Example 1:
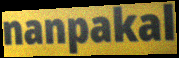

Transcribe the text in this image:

nanpakal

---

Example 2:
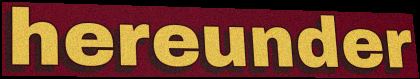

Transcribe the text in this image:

hereunder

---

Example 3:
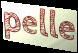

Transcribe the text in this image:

pelle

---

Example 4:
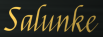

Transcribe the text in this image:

Salunke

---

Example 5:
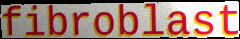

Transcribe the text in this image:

fibroblast